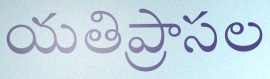
యతిప్రాసల